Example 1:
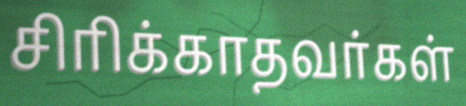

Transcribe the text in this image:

சிரிக்காதவர்கள்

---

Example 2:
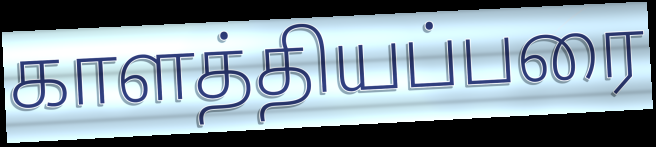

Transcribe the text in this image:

காளத்தியப்பரை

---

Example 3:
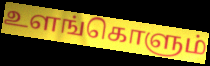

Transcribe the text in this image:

உளங்கொளும்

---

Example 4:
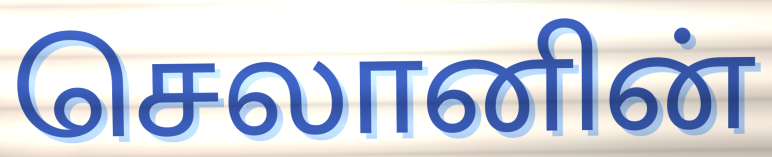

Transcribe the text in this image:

செலானின்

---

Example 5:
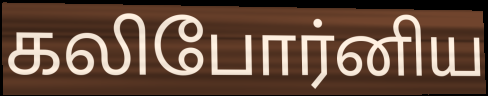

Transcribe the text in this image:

கலிபோர்னிய